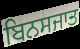
ਬਿਨਸਜਾਤ